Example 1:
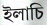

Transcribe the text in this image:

ইলাচি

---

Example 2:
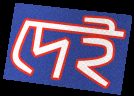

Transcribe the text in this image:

দেই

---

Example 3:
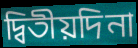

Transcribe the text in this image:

দ্বিতীয়দিনা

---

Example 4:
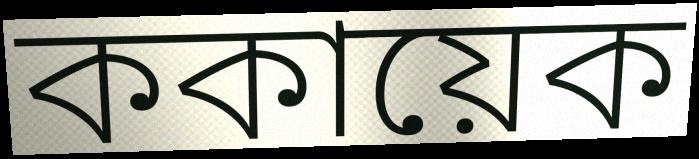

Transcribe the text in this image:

ককায়েক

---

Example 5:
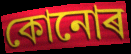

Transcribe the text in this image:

কোনোৰ